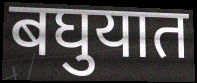
बघुयात